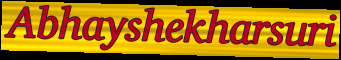
Abhayshekharsuri